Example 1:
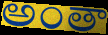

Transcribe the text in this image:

అంతా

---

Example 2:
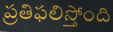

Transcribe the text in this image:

ప్రతిఫలిస్తోంది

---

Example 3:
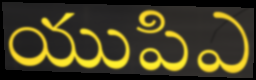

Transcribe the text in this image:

యుపిఎ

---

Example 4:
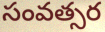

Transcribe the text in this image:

సంవత్సర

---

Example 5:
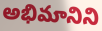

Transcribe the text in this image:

అభిమానిని